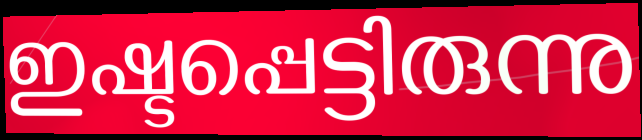
ഇഷ്ടപ്പെട്ടിരുന്നു